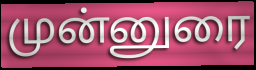
முன்னுரை